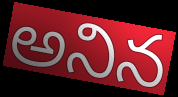
అనిన